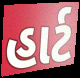
હાર્ટ